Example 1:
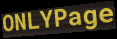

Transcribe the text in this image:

ONLYPage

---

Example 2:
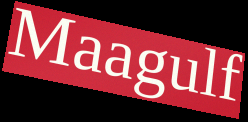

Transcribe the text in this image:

Maagulf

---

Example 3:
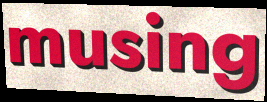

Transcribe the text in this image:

musing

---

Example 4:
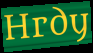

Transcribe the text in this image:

Hrdy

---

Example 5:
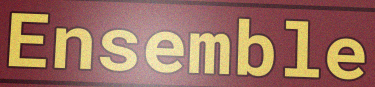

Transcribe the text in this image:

Ensemble